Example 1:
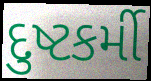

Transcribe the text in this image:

દુષ્ટકર્મી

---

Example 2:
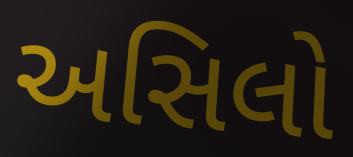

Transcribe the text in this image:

અસિલો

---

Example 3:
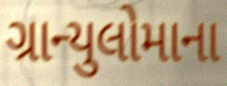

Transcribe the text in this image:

ગ્રાન્યુલોમાના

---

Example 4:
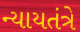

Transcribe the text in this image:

ન્યાયતંત્રે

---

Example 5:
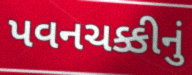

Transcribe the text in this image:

પવનચક્કીનું